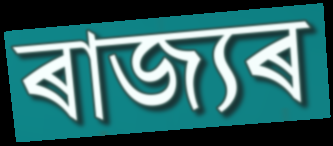
ৰাজ্যৰ